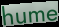
hume